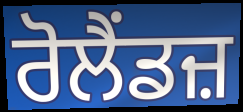
ਰੋਲੈਂਡਜ਼